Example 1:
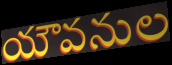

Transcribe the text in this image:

యౌవనుల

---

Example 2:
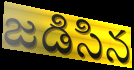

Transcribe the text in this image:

జడిసిన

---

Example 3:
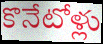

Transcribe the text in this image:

కొనేటోళ్లు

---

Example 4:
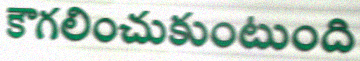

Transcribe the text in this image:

కౌగలించుకుంటుంది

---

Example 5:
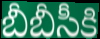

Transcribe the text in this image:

బీబీసీకి